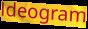
Ideogram